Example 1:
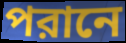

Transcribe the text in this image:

পরানে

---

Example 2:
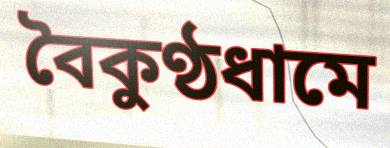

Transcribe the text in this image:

বৈকুণ্ঠধামে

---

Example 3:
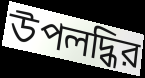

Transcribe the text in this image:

উপলদ্ধির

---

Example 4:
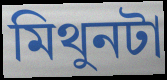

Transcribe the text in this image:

মিথুনটা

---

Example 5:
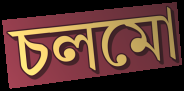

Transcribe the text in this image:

চলমো